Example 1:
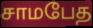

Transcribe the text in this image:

சாமபேத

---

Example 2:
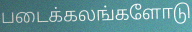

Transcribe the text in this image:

படைக்கலங்களோடு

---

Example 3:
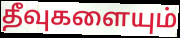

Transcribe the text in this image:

தீவுகளையும்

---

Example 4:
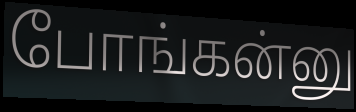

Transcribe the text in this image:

போங்கன்னு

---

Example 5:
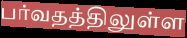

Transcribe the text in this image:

பர்வதத்திலுள்ள